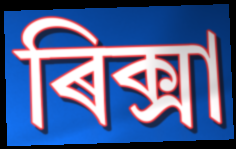
ৰিক্সা